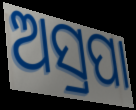
ଅସ୍ରପା